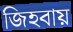
জিহবায়